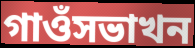
গাওঁসভাখন